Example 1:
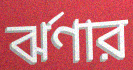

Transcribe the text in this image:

র্ঝণার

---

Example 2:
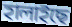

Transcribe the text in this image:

হালাইছে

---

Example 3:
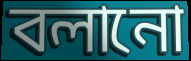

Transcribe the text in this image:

বলানো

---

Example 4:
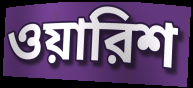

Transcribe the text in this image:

ওয়ারিশ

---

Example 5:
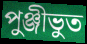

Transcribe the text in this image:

পুঞ্জীভুত